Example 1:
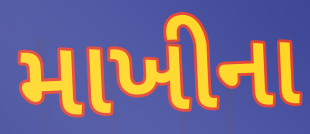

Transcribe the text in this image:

માખીના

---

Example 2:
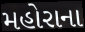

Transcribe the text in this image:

મહોરાના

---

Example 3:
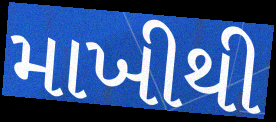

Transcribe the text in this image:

માખીથી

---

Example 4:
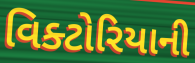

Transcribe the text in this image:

વિક્ટોરિયાની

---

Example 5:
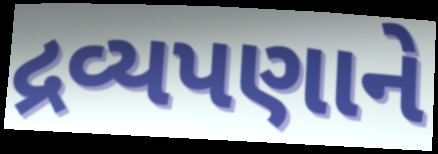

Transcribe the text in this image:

દ્રવ્યપણાને